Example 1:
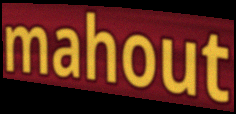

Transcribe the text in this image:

mahout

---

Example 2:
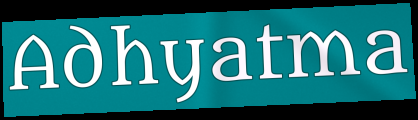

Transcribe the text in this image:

Adhyatma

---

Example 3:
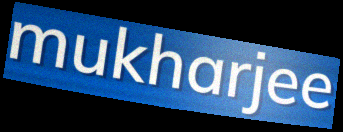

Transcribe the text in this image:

mukharjee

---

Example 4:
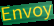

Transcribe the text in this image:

Envoy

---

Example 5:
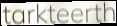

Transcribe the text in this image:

tarkteerth